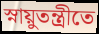
স্নায়ুতন্ত্রীতে